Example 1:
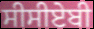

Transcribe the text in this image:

ਸੀਸੀਏਬੀ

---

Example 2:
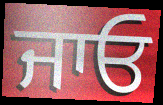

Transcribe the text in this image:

ਜਾਓ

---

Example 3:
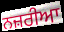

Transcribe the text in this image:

ਨਜ਼ਰੀਆ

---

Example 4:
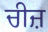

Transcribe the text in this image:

ਚੀਜ਼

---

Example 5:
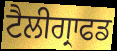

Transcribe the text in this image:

ਟੈਲੀਗ੍ਰਾਫਡ